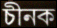
চীনক